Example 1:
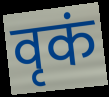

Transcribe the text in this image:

वृकं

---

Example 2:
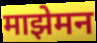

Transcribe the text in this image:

माझेमन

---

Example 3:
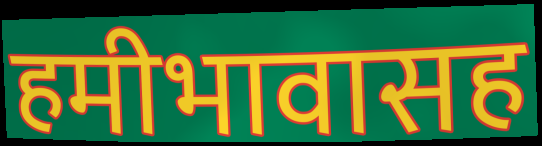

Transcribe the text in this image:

हमीभावासह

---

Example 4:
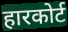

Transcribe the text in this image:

हारकोर्ट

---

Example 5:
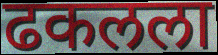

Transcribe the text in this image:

ढकलला